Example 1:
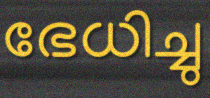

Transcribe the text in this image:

ഭേധിച്ചു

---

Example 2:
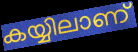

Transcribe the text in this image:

കയ്യിലാണ്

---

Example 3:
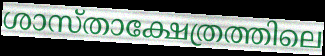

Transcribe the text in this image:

ശാസ്താക്ഷേത്രത്തിലെ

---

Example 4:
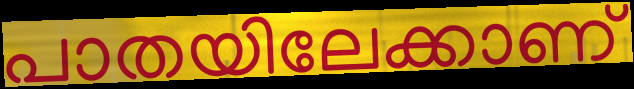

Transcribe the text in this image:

പാതയിലേക്കാണ്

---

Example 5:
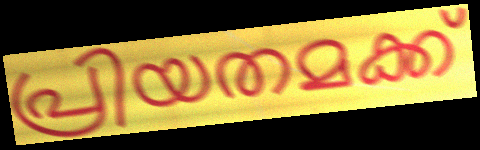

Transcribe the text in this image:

പ്രിയതമക്ക്